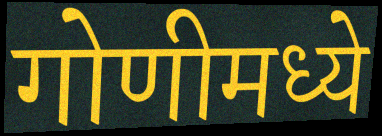
गोणीमध्ये